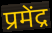
प्रमेंद्र